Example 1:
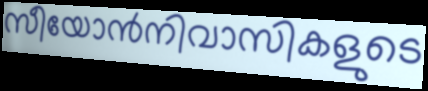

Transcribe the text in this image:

സീയോൻനിവാസികളുടെ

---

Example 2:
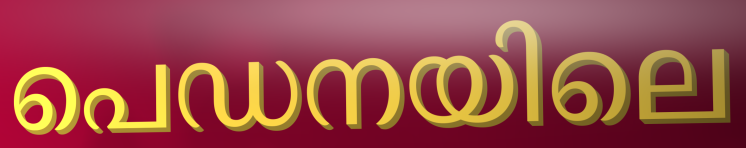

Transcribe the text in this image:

പെഡനയിലെ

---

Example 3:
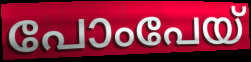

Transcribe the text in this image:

പോംപേയ്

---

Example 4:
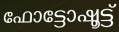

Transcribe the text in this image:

ഫോട്ടോഷൂട്ട്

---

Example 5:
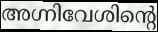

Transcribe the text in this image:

അഗ്നിവേശിന്റെ